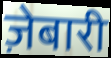
ज़ेबारी